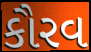
કૌરવ